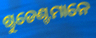
ଷ୍ଟୁଡେଣ୍ଟମାନେ